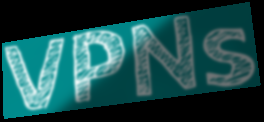
VPNs